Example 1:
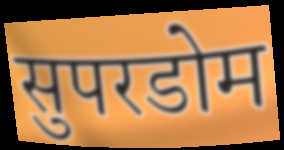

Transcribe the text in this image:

सुपरडोम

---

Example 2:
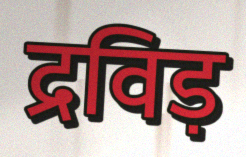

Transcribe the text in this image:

द्रविड़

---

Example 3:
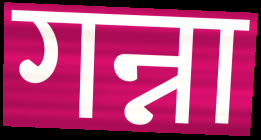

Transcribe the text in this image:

गन्ना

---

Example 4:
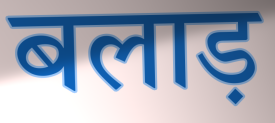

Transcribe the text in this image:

बलाड़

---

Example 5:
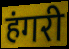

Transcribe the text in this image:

हंगरी